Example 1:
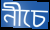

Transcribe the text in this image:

নীচে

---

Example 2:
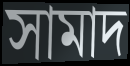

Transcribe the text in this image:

সামাদ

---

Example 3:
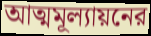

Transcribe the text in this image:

আত্মমূল্যায়নের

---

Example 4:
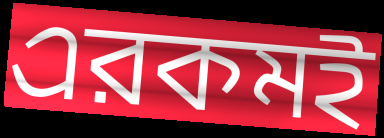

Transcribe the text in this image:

এরকমই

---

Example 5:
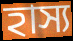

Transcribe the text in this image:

হাস্য